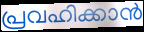
പ്രവഹിക്കാൻ